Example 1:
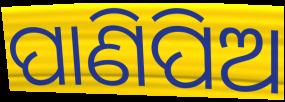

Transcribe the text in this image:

ପାଣିପିଅ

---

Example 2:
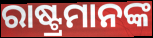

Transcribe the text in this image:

ରାଷ୍ଟ୍ରମାନଙ୍କ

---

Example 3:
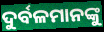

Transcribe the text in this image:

ଦୁର୍ବଳମାନଙ୍କୁ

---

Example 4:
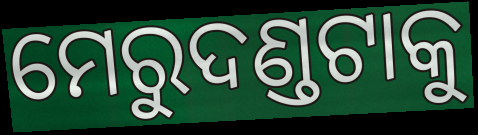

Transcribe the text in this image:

ମେରୁଦଣ୍ଡଟାକୁ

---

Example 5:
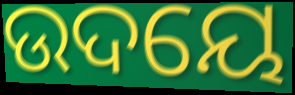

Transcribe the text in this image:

ଉଦୟେ